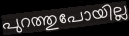
പുറത്തുപോയില്ല